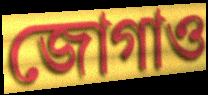
জোগাও